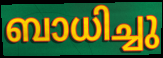
ബാധിച്ചു